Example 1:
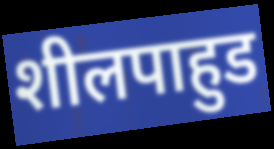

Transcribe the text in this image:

शीलपाहुड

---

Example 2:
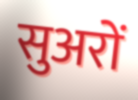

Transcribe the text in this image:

सुअरों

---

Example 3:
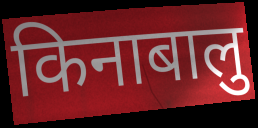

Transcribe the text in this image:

किनाबालु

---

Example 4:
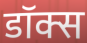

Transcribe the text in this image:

डॉक्स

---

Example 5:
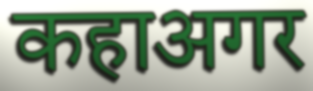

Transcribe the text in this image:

कहाअगर